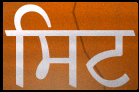
ਸਿਟ